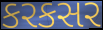
કરકસર